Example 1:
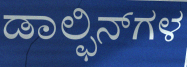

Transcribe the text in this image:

ಡಾಲ್ಫಿನ್‌ಗಳ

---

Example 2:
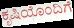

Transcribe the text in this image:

ಕೃಷಿಯೊಂದಿಗೆ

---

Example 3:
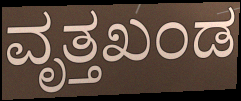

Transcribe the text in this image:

ವೃತ್ತಖಂಡ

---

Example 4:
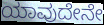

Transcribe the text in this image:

ಯಾವುದೇನೇ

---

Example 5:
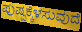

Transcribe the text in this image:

ಪುಷ್ಪಕ್ಕೆಳಸುವುದೆ